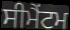
ਸੀਮੈਂਟਮ